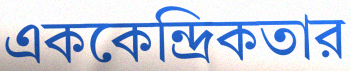
এককেন্দ্রিকতার